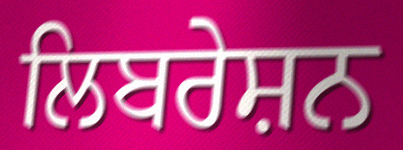
ਲਿਬਰੇਸ਼ਨ